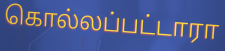
கொல்லப்பட்டாரா